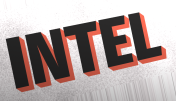
INTEL